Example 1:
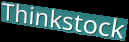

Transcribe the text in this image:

Thinkstock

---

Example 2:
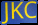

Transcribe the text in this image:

JKC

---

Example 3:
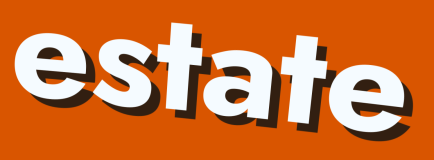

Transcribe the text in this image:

estate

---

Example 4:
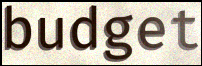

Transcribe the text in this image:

budget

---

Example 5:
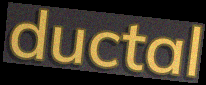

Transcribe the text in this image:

ductal